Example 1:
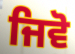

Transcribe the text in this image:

ਜਿਵੋ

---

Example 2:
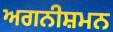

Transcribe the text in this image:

ਅਗਨੀਸ਼ਮਨ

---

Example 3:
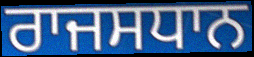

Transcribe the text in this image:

ਰਾਜਸਧਾਨ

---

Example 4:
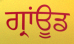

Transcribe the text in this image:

ਗ੍ਰਾਂਊਡ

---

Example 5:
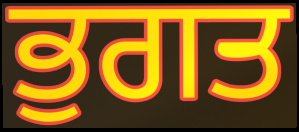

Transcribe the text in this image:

ਭੁਗਤ